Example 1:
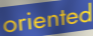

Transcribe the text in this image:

oriented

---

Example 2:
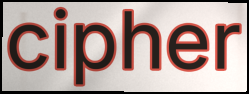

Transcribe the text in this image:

cipher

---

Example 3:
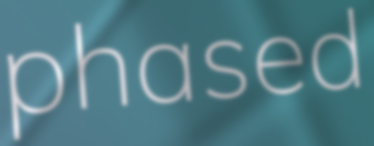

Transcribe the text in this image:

phased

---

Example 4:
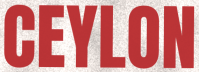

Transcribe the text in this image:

CEYLON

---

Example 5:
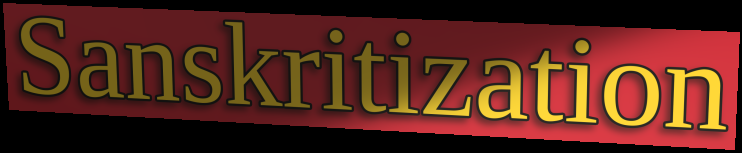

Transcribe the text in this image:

Sanskritization